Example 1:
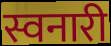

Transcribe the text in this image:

स्वनारी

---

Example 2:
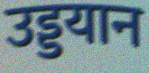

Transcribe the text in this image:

उड्डयान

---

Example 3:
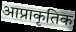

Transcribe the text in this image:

आप्राकृतिक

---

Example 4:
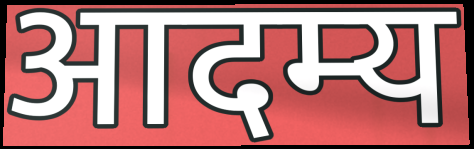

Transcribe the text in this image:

आदम्य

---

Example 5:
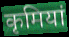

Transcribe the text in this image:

कृमियां